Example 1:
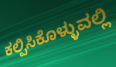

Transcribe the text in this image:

ಕಲ್ಪಿಸಿಕೊಳ್ಳುವಲ್ಲಿ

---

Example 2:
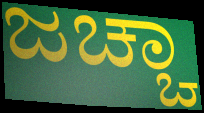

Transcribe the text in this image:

ಜಚ್ಚಾ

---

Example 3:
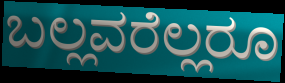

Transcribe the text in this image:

ಬಲ್ಲವರೆಲ್ಲರೂ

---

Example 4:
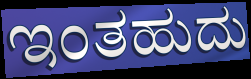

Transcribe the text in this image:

ಇಂತಹುದು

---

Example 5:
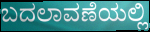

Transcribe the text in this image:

ಬದಲಾವಣೆಯಲ್ಲಿ